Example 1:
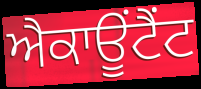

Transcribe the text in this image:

ਐਕਾਊਂਟੈਂਟ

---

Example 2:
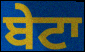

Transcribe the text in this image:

ਬੇਟਾ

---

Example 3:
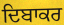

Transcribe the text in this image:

ਦਿਬਾਕਰ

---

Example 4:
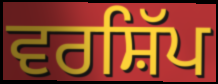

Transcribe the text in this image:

ਵਰਸ਼ਿੱਪ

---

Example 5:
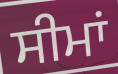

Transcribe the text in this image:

ਸੀਮਾਂ